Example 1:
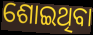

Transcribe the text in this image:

ଶୋଇଥିବା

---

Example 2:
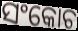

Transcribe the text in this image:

ସଂକୋଚ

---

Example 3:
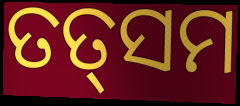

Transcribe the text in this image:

ତତ୍‌ସମ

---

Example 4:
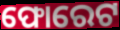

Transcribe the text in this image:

ଫୋରେଟ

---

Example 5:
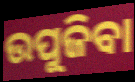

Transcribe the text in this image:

ଉପୁଜିବା